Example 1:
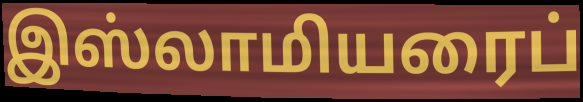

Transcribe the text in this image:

இஸ்லாமியரைப்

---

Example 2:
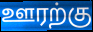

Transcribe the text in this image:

ஊரற்கு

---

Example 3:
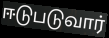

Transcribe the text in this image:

ஈடுபடுவார்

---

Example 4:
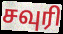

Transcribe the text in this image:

சவுரி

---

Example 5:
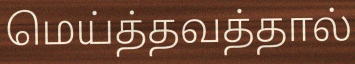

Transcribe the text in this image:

மெய்த்தவத்தால்